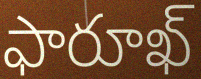
ఫారూఖ్